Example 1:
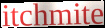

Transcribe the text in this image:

itchmite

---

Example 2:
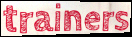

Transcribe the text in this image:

trainers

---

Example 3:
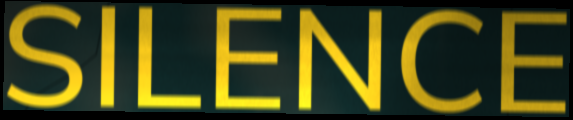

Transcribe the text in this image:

SILENCE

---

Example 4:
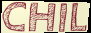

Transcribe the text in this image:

CHIL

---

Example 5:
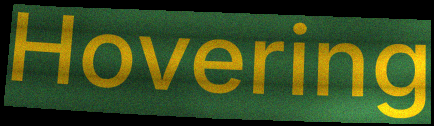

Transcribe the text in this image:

Hovering